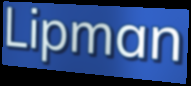
Lipman